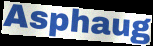
Asphaug